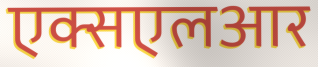
एक्सएलआर